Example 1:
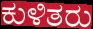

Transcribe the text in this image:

ಕುಳಿತರು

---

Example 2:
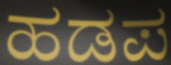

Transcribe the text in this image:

ಹಡಪ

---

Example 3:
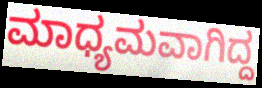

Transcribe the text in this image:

ಮಾಧ್ಯಮವಾಗಿದ್ದ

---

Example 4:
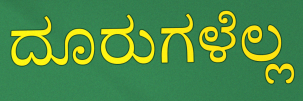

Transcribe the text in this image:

ದೂರುಗಳೆಲ್ಲ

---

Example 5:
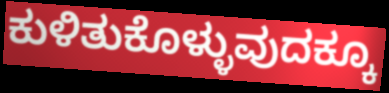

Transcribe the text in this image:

ಕುಳಿತುಕೊಳ್ಳುವುದಕ್ಕೂ